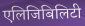
एलिजिबिलिटी